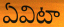
ఏవిటా